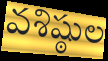
వశిష్ఠుల